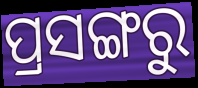
ପ୍ରସଙ୍ଗରୁ